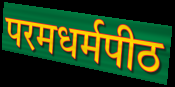
परमधर्मपीठ